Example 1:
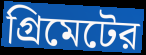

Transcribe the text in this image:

গ্রিমেটের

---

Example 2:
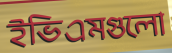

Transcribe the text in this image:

ইভিএমগুলো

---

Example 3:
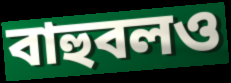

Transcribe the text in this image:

বাহুবলও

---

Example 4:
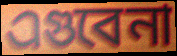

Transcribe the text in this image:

এগুবেনা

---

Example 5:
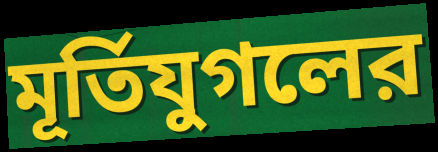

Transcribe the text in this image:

মূর্তিযুগলের